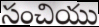
సంచియు